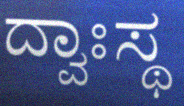
ದ್ವಾಃಸ್ಥ